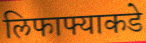
लिफाफ्याकडे